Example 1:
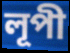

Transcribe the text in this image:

লূপী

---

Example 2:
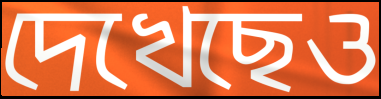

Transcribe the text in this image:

দেখেছেও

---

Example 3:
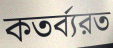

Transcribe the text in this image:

কতর্ব্যরত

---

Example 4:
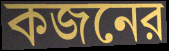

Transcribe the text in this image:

কজনের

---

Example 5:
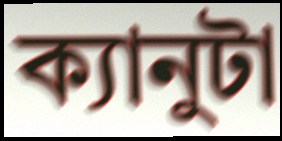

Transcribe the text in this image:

ক্যানুটা